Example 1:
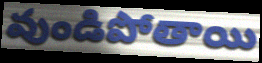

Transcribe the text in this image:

వుండిపోతాయి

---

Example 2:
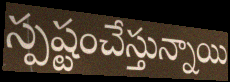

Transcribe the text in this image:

స్పష్టంచేస్తున్నాయి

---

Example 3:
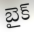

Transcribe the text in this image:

బైక్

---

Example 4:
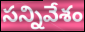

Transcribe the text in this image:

సన్నివేశం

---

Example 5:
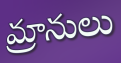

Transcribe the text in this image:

మ్రానులు